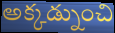
అక్కడ్నుంచి